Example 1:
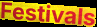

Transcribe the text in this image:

Festivals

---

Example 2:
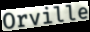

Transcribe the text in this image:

Orville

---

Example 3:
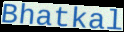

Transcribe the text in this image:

Bhatkal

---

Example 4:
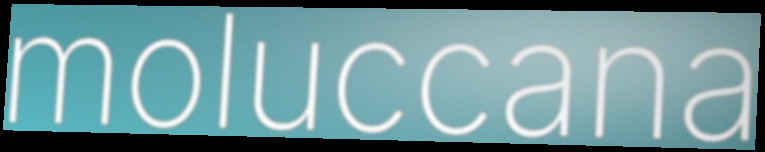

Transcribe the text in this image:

moluccana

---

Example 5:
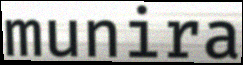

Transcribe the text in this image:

munira